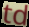
td